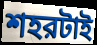
শহরটাই